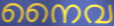
നൈവ